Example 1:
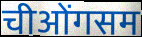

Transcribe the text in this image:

चीओंगसम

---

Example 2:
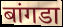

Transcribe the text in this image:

बांगडा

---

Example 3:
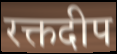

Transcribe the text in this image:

रक्तदीप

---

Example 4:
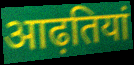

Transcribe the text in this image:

आढ़तियां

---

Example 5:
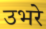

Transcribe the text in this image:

उभरे